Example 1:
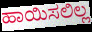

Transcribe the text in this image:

ಹಾಯಿಸಲಿಲ್ಲ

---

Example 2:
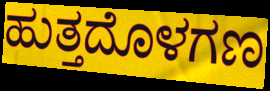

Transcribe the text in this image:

ಹುತ್ತದೊಳಗಣ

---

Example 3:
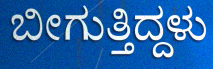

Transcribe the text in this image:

ಬೀಗುತ್ತಿದ್ದಳು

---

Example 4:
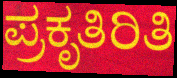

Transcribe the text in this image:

ಪ್ರಕೃತಿರಿತಿ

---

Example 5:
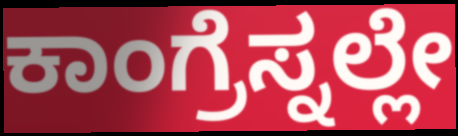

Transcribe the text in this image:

ಕಾಂಗ್ರೆಸ್ನಲ್ಲೇ